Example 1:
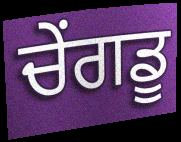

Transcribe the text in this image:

ਚੇਂਗਡੂ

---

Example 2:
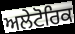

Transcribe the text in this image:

ਅਲੇਟੋਰਿਕ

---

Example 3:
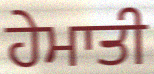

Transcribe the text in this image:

ਹੇਮਾਤੀ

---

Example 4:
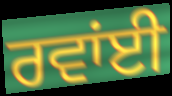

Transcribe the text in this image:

ਰਵਾਂਈ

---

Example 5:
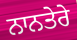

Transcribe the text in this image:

ਨਾਨਤੇਰੇ